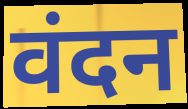
वंदन